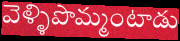
వెళ్ళిపొమ్మంటాడు